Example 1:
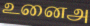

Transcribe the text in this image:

உனைஅ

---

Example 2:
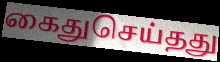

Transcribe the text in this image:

கைதுசெய்தது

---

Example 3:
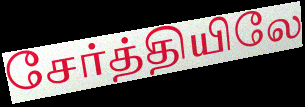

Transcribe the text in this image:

சேர்த்தியிலே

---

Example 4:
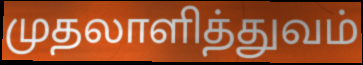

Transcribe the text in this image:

முதலாளித்துவம்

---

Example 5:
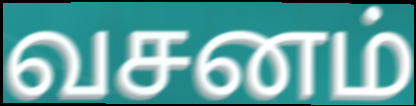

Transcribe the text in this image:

வசனம்